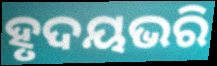
ହୃଦୟଭରି